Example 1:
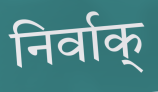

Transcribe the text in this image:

निर्वाक्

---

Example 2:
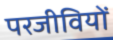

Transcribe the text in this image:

परजीवियों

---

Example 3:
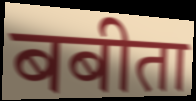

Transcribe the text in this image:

बबीता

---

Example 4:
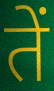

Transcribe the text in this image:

तें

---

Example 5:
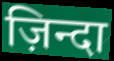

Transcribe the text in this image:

ज़िन्दा